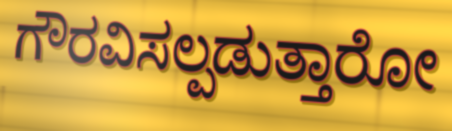
ಗೌರವಿಸಲ್ಪಡುತ್ತಾರೋ